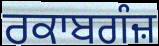
ਰਕਾਬਗੰਜ਼